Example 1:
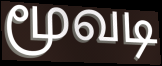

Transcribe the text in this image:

மூவடி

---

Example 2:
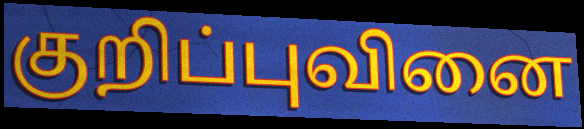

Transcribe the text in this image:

குறிப்புவினை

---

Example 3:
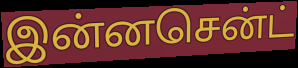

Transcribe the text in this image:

இன்னசென்ட்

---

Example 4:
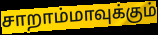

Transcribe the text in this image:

சாறாம்மாவுக்கும்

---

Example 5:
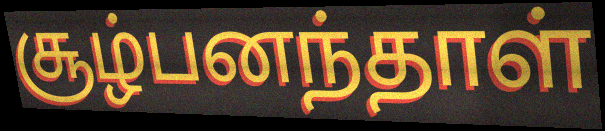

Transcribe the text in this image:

சூழ்பனந்தாள்